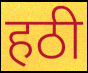
हठी